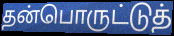
தன்பொருட்டுத்